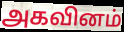
அகவினம்